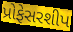
પ્રોફેસરશીપ